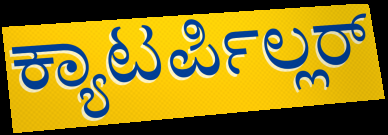
ಕ್ಯಾಟರ್ಪಿಲ್ಲರ್